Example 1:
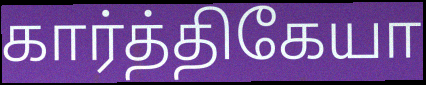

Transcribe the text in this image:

கார்த்திகேயா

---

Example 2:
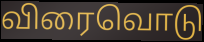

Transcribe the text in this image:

விரைவொடு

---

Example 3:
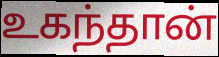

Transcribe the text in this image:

உகந்தான்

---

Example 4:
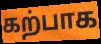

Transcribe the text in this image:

கற்பாக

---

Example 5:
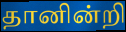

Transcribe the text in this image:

தானின்றி